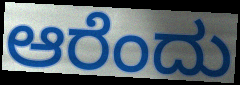
ಆರೆಂದು